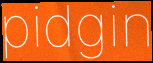
pidgin